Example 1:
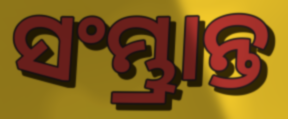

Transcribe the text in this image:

ସଂମ୍ଭ୍ରାନ୍ତ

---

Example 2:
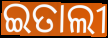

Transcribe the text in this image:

ଇତାଲୀ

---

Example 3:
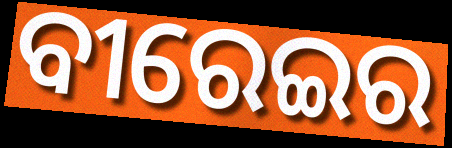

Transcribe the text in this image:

ବୀରେଇର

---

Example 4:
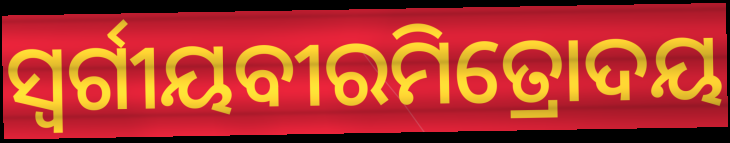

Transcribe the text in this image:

ସ୍ୱର୍ଗୀୟବୀରମିତ୍ରୋଦୟ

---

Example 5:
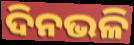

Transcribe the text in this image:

ଦିନଭଳି